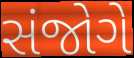
સંજોગે